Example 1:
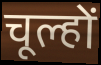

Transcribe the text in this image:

चूल्हों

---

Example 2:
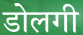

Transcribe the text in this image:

डोलगी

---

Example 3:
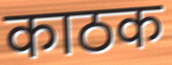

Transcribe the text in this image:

काठक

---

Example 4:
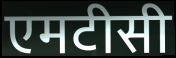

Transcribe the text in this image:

एमटीसी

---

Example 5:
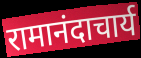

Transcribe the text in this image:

रामानंदाचार्य